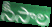
సీసాల